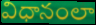
విధానంలా